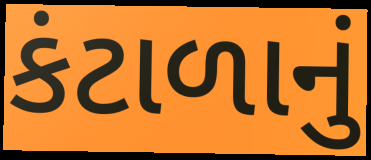
કંટાળાનું